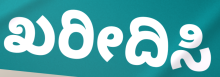
ಖರೀದಿಸಿ